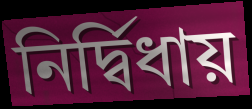
নির্দ্বিধায়